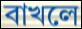
বাখলে